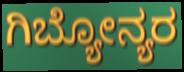
ಗಿಬ್ಯೋನ್ಯರ